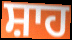
ਸ਼ਾਹ